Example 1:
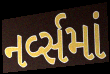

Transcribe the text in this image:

નર્વ્સમાં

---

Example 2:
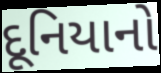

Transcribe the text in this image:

દૂનિયાનો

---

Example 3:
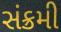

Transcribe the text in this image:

સંક્રમી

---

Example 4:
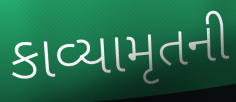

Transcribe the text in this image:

કાવ્યામૃતની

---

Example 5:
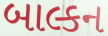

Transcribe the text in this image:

બાલ્કન